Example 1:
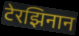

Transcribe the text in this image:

टेरझिनान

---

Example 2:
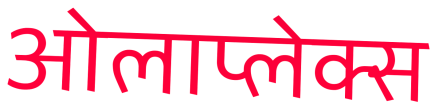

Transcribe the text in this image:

ओलाप्लेक्स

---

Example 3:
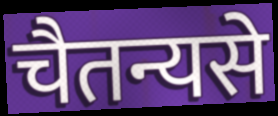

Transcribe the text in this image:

चैतन्यसे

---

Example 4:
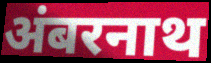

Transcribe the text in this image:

अंबरनाथ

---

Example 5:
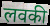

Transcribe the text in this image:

लवकी